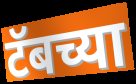
टॅबच्या